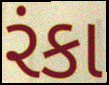
રંકા